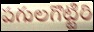
పగులగొట్టిరి